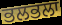
ਭਲਭਲਾ